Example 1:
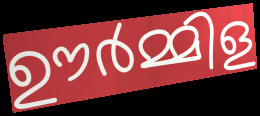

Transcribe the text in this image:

ഊർമ്മിള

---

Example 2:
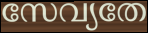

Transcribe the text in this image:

സേവ്യതേ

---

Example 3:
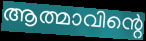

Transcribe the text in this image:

ആത്മാവിന്റെ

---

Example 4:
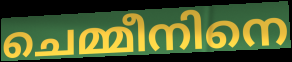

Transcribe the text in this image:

ചെമ്മീനിനെ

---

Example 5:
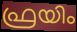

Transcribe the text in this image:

ഫ്രയിം